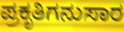
ಪ್ರಕೃತಿಗನುಸಾರ